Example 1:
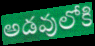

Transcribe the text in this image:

అడవులోకి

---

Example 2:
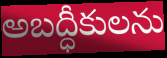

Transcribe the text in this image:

అబద్ధీకులను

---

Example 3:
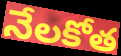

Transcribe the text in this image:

నేలకోత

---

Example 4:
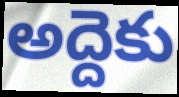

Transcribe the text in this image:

అద్దెకు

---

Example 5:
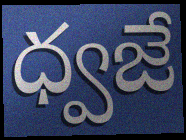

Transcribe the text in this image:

ధ్వజే